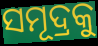
ସମୂଦ୍ରକୁ